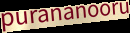
purananooru